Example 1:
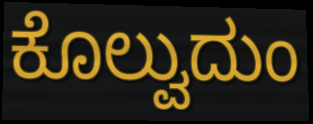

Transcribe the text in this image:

ಕೊಲ್ವುದುಂ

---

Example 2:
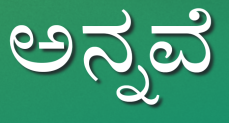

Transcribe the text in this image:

ಅನ್ನವೆ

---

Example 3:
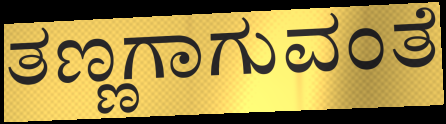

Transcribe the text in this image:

ತಣ್ಣಗಾಗುವಂತೆ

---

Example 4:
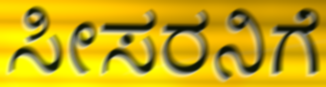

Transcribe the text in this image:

ಸೀಸರನಿಗೆ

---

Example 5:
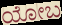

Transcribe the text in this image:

ಯೋಬ